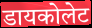
डायकोलेट